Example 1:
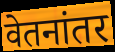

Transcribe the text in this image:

वेतनांतर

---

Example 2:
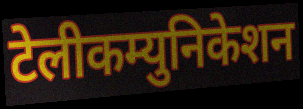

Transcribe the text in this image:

टेलीकम्युनिकेशन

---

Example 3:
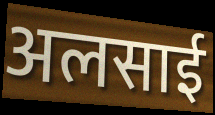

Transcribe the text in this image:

अलसाई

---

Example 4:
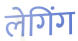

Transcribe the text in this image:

लेगिंग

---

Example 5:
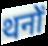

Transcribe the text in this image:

थनों